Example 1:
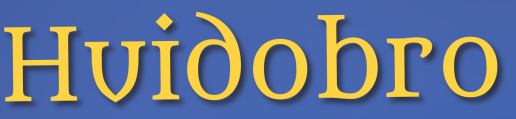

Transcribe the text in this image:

Huidobro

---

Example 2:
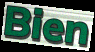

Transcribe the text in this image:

Bien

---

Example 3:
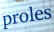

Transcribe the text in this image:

proles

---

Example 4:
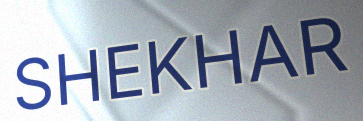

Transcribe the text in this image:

SHEKHAR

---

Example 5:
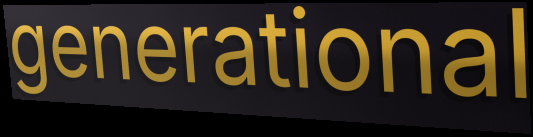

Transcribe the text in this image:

generational